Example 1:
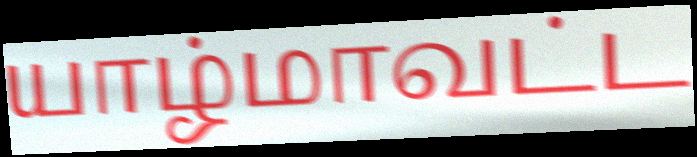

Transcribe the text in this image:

யாழ்மாவட்ட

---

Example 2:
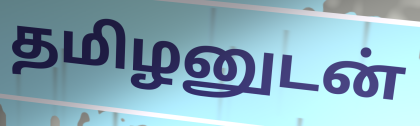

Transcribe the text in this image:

தமிழனுடன்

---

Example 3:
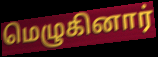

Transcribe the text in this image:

மெழுகினார்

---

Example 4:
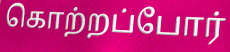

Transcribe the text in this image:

கொற்றப்போர்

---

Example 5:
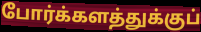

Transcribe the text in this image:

போர்க்களத்துக்குப்